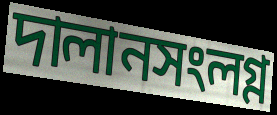
দালানসংলগ্ন